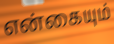
என்கையும்